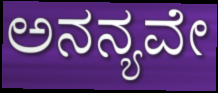
ಅನನ್ಯವೇ